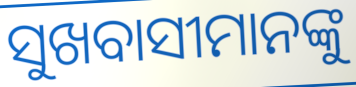
ସୁଖବାସୀମାନଙ୍କୁ